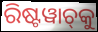
ରିଷ୍ଟୱାଚ୍‌କୁ